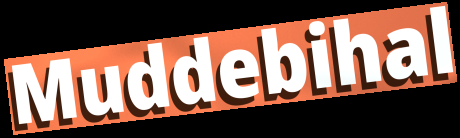
Muddebihal